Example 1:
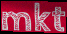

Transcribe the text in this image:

mkt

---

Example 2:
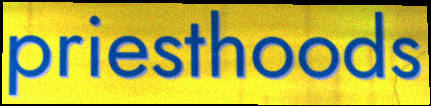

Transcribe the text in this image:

priesthoods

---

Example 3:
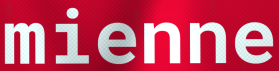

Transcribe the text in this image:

mienne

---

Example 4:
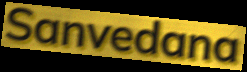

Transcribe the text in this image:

Sanvedana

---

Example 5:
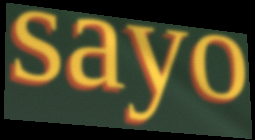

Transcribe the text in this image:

sayo